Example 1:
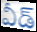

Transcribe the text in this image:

వీడ్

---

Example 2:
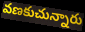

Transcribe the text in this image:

వణకుచున్నారు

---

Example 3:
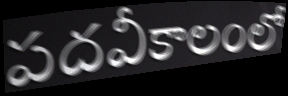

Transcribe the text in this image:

పదవీకాలంలో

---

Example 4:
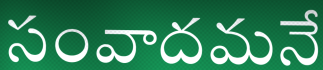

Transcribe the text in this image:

సంవాదమనే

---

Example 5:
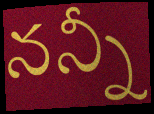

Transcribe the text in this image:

నన్నీ